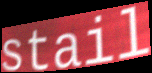
stail